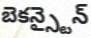
బెకన్స్టైన్